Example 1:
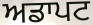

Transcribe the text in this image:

ਅਡਾਪਟ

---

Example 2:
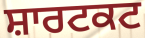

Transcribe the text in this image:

ਸ਼ਾਰਟਕਟ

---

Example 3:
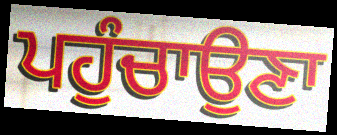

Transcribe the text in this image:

ਪਹੁੰਚਾਉਣਾ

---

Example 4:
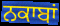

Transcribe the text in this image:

ਨਕਾਬਾਂ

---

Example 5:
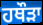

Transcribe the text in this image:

ਹਥੌੜਾ